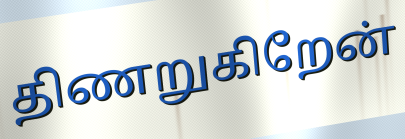
திணறுகிறேன்